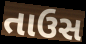
તાઉસ